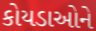
કોયડાઓને